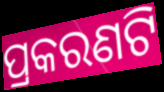
ପ୍ରକରଣଟି